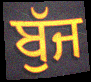
ਬੁੱਜ